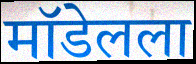
मॉडेलला